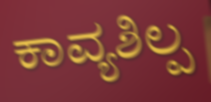
ಕಾವ್ಯಶಿಲ್ಪ